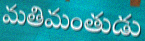
మతిమంతుడు